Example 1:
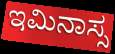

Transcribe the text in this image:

ಇಮಿನಾಸ್ಸ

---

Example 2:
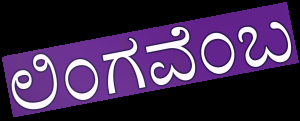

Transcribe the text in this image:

ಲಿಂಗವೆಂಬ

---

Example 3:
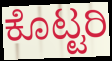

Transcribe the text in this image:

ಕೊಟ್ಟರಿ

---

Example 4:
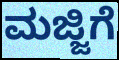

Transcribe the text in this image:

ಮಜ್ಜಿಗೆ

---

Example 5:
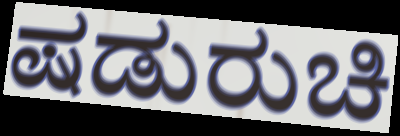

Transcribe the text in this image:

ಷಡುರುಚಿ